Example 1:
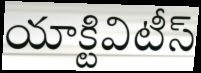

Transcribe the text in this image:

యాక్టివిటీస్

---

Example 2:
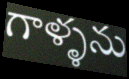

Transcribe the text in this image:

గాళ్ళను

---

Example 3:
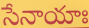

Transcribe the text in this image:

సేనాయాః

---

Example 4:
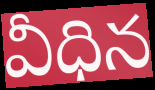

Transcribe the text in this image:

వీధిన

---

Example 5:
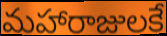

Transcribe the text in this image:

మహారాజులకే